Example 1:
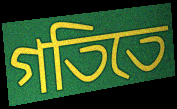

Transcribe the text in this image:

গতিতে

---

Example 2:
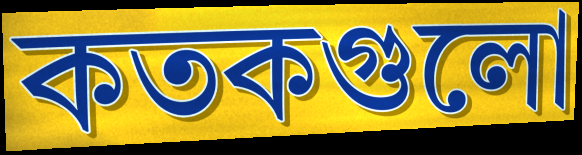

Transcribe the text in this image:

কতকগুলো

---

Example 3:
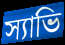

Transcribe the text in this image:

স্যাভি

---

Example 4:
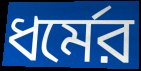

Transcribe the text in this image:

ধর্মের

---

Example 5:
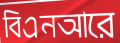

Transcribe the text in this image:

বিএনআরে